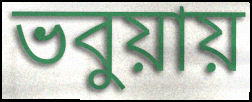
ভবুয়ায়